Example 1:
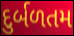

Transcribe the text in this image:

દુર્બળતમ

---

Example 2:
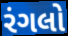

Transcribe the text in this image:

રંગલો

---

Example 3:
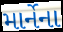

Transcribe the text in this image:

માર્નેના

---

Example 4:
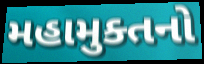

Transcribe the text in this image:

મહામુક્તનો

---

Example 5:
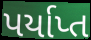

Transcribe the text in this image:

પર્યાપ્ત